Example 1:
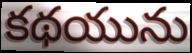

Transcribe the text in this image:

కథయును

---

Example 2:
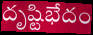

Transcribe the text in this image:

దృష్టిభేదం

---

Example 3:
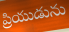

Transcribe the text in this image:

ప్రియుడును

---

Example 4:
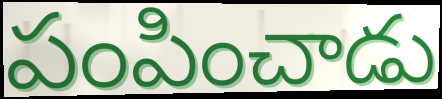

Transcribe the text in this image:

పంపించాడు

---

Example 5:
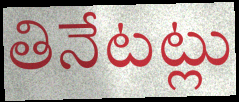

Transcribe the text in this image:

తినేటట్లు